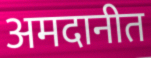
अमदानीत